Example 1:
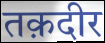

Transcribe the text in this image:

तक़दीर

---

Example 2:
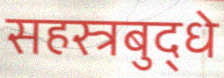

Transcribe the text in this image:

सहस्त्रबुद्धे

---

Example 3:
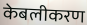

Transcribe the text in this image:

केबलीकरण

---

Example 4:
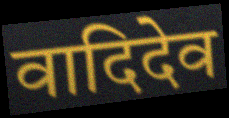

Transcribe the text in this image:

वादिदेव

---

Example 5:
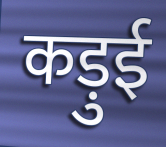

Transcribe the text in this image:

कड़ुई